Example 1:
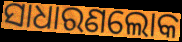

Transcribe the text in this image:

ସାଧାରଣଲୋକ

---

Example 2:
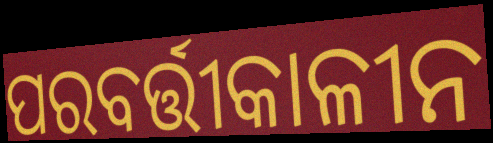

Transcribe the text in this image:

ପରବର୍ତ୍ତୀକାଳୀନ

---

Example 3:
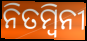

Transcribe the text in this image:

ନିତମ୍ବିନୀ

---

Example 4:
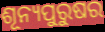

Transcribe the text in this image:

ଶୂନ୍ୟପୁରୁଷର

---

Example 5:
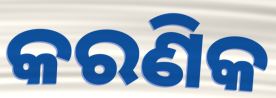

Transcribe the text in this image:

କରଣିକ